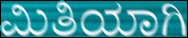
ಮಿತಿಯಾಗಿ